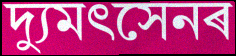
দ্যুমৎসেনৰ